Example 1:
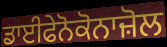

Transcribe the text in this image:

ਡਾਈਫੇਨੋਕੋਨਾਜ਼ੋਲ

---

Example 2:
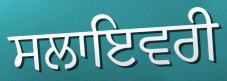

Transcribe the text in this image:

ਸਲਾਇਵਰੀ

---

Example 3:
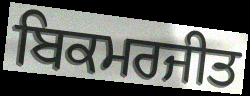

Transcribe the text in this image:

ਬਿਕਮਰਜੀਤ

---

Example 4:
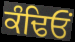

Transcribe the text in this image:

ਕੰਢਿਓਂ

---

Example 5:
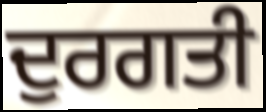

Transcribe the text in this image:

ਦੁਰਗਤੀ